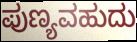
ಪುಣ್ಯವಹುದು